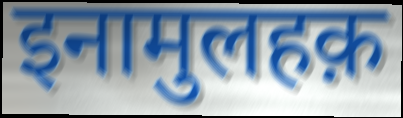
इनामुलहक़